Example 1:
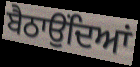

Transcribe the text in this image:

ਬੈਠਾਉਂਦਿਆਂ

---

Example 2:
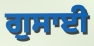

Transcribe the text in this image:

ਗੁਸਾਈ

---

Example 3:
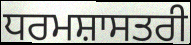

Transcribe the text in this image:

ਧਰਮਸ਼ਾਸਤਰੀ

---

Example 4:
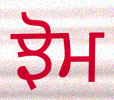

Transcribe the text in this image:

ਝੋਮ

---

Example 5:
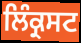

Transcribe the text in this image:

ਲਿੰਕ੍ਰਸਟ